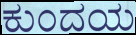
ಕುಂದಯ